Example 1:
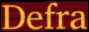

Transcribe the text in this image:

Defra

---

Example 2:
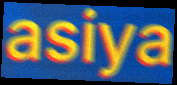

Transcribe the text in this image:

asiya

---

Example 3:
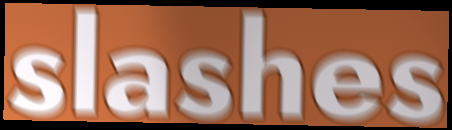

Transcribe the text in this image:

slashes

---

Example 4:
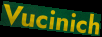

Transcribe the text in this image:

Vucinich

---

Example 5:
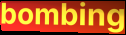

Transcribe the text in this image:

bombing